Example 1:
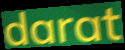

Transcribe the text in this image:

darat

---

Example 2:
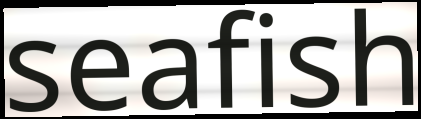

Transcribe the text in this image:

seafish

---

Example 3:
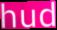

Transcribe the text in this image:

hud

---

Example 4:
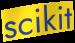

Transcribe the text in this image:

scikit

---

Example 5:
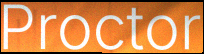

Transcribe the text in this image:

Proctor